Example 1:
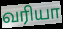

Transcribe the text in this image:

வரியா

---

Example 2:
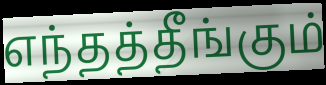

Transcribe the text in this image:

எந்தத்தீங்கும்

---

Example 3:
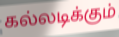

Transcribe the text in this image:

கல்லடிக்கும்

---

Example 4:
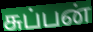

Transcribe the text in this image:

சுப்பன்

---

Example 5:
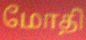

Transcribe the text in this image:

மோதி